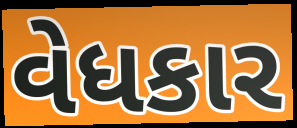
વેધકાર